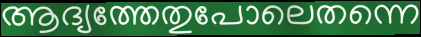
ആദ്യത്തേതുപോലെതന്നെ